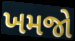
ખમજો